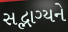
સદ્ભાગ્યને